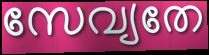
സേവ്യതേ